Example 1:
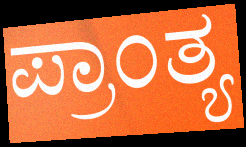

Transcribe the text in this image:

ಪ್ರಾಂತ್ಯ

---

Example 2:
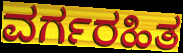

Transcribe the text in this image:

ವರ್ಗರಹಿತ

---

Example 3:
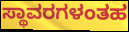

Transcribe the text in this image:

ಸ್ಥಾವರಗಳಂತಹ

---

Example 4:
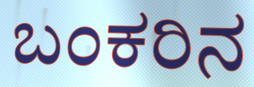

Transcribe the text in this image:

ಬಂಕರಿನ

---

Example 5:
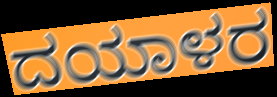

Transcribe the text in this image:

ದಯಾಳರ